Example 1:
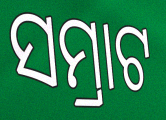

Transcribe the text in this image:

ସମ୍ରାଟ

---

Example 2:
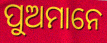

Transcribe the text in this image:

ପୁଅମାନେ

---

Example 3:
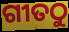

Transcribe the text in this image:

ଗୀତଠୁ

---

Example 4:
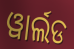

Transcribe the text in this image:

ୱାର୍ଲଡ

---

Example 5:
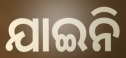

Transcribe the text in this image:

ଯାଇନି